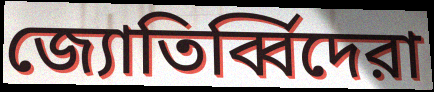
জ্যোতির্ব্বিদেরা